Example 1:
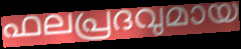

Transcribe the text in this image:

ഫലപ്രദവുമായ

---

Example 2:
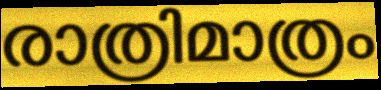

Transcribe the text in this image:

രാത്രിമാത്രം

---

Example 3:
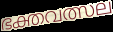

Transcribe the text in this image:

ഭക്തവത്സല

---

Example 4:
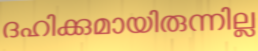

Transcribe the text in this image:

ദഹിക്കുമായിരുന്നില്ല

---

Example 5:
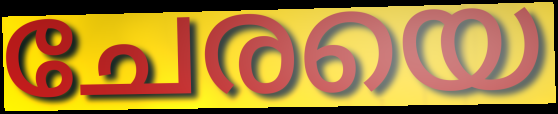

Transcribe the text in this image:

ചേരയെ